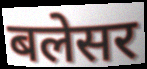
बलेसर